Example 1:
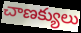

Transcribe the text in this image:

చాణక్యులు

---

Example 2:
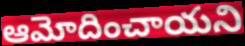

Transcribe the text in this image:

ఆమోదించాయని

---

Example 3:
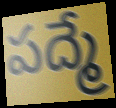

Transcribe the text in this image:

పద్మే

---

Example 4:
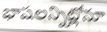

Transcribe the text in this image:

భాషలన్నిట్లోనూ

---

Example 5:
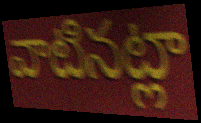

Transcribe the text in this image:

వాటినట్లా